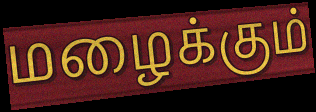
மழைக்கும்